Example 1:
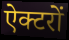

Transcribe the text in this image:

ऐक्टरों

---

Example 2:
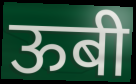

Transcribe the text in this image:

ऊबी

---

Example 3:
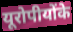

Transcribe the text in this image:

यूरोपीयोंके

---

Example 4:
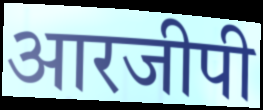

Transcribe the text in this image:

आरजीपी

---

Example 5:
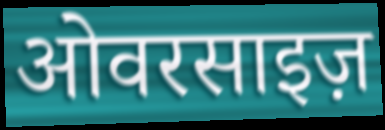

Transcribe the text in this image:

ओवरसाइज़